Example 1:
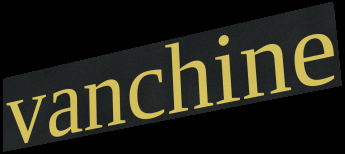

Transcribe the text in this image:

vanchine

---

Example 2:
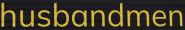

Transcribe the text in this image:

husbandmen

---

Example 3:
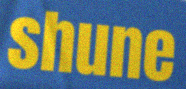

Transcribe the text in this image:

shune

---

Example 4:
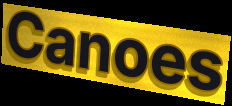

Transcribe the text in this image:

Canoes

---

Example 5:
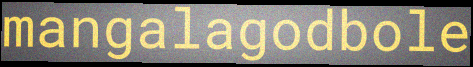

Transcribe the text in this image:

mangalagodbole